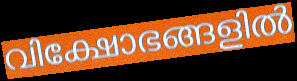
വിക്ഷോഭങ്ങളിൽ